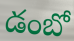
డంబో